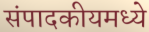
संपादकीयमध्ये